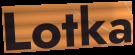
Lotka